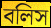
বলিস